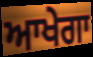
ਆਖੇਗਾ